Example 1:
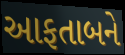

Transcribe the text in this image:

આફતાબને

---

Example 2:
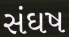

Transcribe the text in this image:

સંઘષ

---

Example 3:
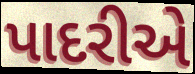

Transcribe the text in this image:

પાદરીએ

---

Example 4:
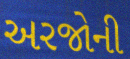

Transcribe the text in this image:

અરજોની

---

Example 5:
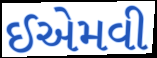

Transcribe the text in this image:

ઈએમવી